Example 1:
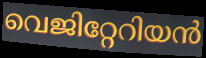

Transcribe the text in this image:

വെജിറ്റേറിയൻ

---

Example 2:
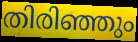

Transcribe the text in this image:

തിരിഞ്ഞും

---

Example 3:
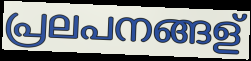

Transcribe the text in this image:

പ്രലപനങ്ങള്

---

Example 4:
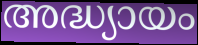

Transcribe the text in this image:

അദ്ധ്യായം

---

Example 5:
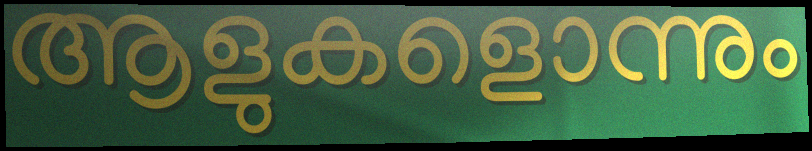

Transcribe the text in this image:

ആളുകളൊന്നും